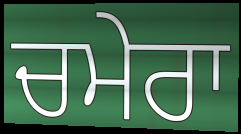
ਚਮੇਰਾ